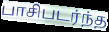
பாசிபடர்ந்த